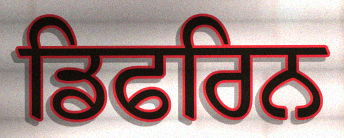
ਡਿਫਰਿਨ